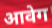
आवेग